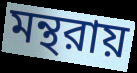
মন্থরায়